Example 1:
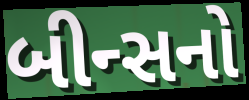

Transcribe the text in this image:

બીન્સનો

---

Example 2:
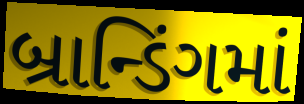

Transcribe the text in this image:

બ્રાન્ડિંગમાં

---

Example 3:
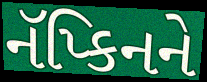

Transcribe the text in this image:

નૅપ્કિનને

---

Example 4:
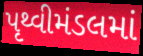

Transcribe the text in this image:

પૃથ્વીમંડલમાં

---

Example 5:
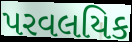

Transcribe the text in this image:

પરવલયિક